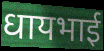
धायभाई